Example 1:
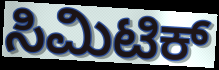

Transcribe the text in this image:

ಸಿಮಿಟಿಕ್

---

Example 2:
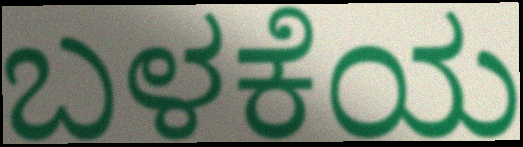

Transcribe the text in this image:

ಬಳಕೆಯ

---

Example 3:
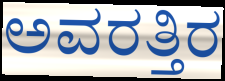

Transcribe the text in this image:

ಅವರತ್ತಿರ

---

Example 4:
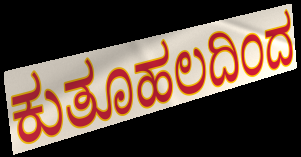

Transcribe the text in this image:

ಕುತೂಹಲದಿಂದ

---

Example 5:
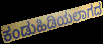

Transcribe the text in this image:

ಕಂಡುಹಿಡಿಯಲಾಗದ